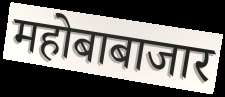
महोबाबाजार